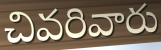
చివరివారు